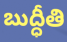
బుద్ధీతి